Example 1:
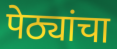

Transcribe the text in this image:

पेठ्यांचा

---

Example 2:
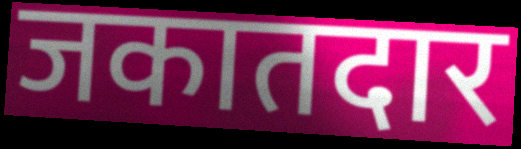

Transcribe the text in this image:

जकातदार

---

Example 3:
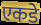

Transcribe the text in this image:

एकडे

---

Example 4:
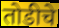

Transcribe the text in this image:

तोडीचे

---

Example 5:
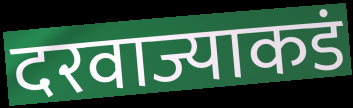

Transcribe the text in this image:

दरवाज्याकडं